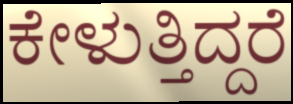
ಕೇಳುತ್ತಿದ್ದರೆ